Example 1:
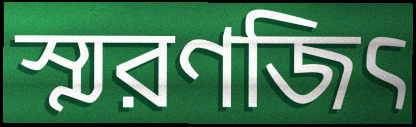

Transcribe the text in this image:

স্মরণজিৎ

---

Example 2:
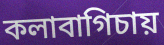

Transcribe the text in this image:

কলাবাগিচায়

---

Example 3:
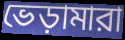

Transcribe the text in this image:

ভেড়ামারা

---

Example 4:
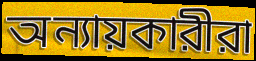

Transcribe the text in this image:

অন্যায়কারীরা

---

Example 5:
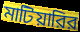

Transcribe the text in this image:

মাটিয়ারির